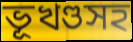
ভূখণ্ডসহ